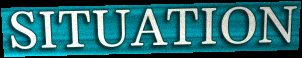
SITUATION